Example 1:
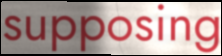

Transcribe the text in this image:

supposing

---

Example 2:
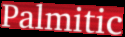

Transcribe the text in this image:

Palmitic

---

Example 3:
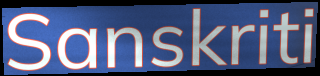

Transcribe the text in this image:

Sanskriti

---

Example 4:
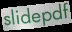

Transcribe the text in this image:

slidepdf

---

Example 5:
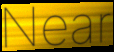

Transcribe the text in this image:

Near